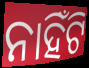
ନାହିଁଟି